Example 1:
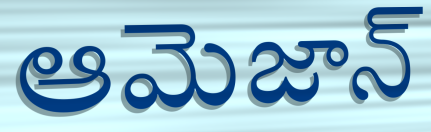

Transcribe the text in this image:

ఆమెజాన్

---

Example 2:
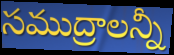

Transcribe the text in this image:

సముద్రాలన్నీ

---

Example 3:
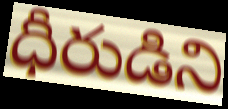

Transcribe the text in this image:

ధీరుడిని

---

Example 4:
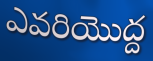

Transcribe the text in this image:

ఎవరియొద్ద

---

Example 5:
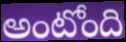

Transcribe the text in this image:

అంటోంది